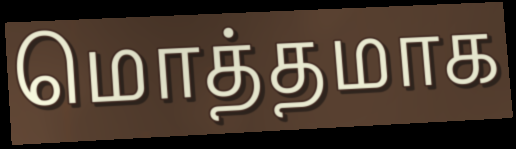
மொத்தமாக